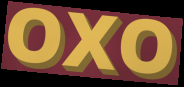
OXO